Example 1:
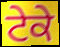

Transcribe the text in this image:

ਟੇਕੇ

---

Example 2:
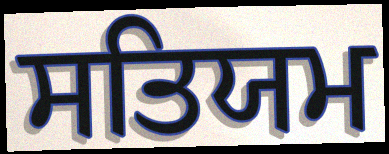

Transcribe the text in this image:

ਸਤਿਯਮ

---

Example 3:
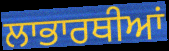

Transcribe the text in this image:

ਲਾਭਾਰਥੀਆਂ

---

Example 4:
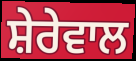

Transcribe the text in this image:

ਸ਼ੇਰੇਵਾਲ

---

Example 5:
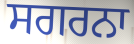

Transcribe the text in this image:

ਸਗਰਨਾ